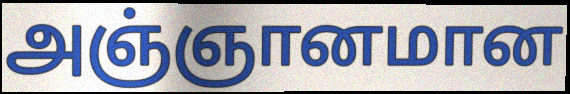
அஞ்ஞானமான